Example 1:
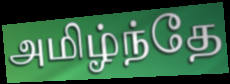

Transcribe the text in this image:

அமிழ்ந்தே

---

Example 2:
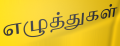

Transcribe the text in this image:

எழுத்துகள்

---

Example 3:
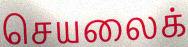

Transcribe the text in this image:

செயலைக்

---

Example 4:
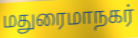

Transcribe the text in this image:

மதுரைமாநகர்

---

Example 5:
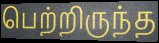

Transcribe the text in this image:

பெற்றிருந்த